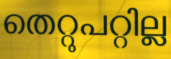
തെറ്റുപറ്റില്ല